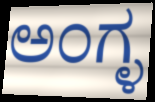
ಅಂಗ್ಳ